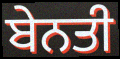
ਬੇਨਤੀ